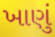
ખાણું